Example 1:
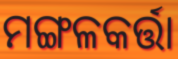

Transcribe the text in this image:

ମଙ୍ଗଳକର୍ତ୍ତା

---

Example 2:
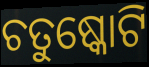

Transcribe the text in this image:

ଚତୁଷ୍କୋଟି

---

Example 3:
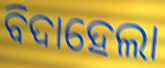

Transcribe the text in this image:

ବିଦାହେଲା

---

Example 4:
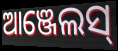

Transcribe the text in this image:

ଆଞ୍ଜେଲସ୍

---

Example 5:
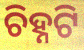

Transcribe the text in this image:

ଚିହ୍ନଟି